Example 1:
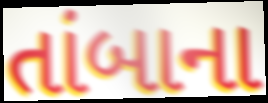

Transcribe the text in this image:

તાંબાના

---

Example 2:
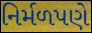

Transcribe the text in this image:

નિર્મળપણે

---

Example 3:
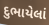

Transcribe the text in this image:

દુભાયેલાં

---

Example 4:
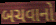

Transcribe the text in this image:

બચવાનો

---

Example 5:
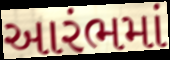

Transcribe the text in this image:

આરંભમાં